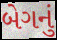
બેગનું